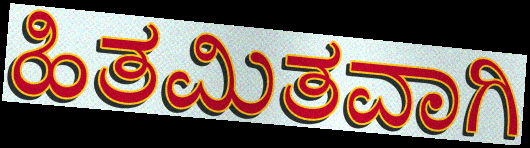
ಹಿತಮಿತವಾಗಿ